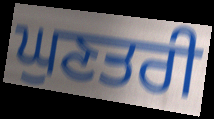
ਘੁਣਤਰੀ